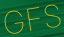
GFS